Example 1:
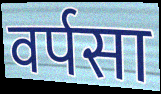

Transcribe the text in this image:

वर्पसा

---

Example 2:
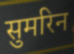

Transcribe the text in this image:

सुमरिन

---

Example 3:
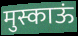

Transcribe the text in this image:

मुस्काऊं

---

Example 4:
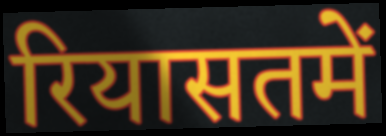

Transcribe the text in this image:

रियासतमें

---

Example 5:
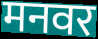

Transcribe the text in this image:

मनवर